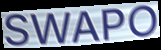
SWAPO